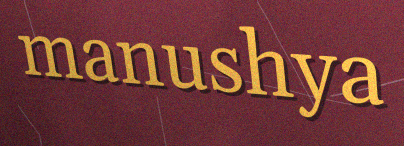
manushya